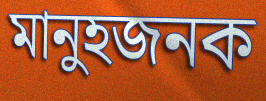
মানুহজনক